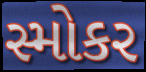
સ્મોકર